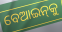
ବେଆଇନ୍‌କୁ